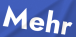
Mehr